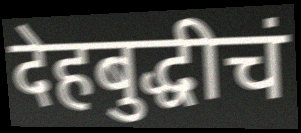
देहबुद्धीचं